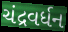
ચંદ્રવર્ધન